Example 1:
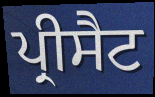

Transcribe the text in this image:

ਪ੍ਰੀਸੈਟ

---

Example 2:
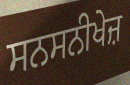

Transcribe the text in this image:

ਸਨਸਨੀਖੇਜ਼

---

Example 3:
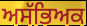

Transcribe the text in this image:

ਅਸੱਭਿਅਕ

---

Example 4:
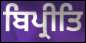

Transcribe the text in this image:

ਬਿਪ੍ਰੀਤਿ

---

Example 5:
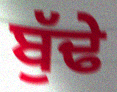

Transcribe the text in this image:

ਬੁੱਢੇ